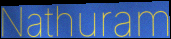
Nathuram